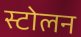
स्टोलन